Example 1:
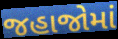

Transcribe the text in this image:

જહાજોમાં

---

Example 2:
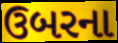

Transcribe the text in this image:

ઉબરના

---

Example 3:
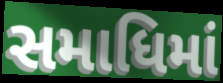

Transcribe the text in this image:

સમાધિમાં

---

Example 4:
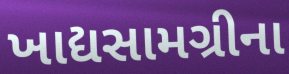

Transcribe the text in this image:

ખાદ્યસામગ્રીના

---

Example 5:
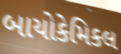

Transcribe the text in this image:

બાયોકેમિકલ